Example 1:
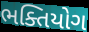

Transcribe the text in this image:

ભક્તિયોગ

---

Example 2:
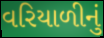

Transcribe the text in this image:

વરિયાળીનું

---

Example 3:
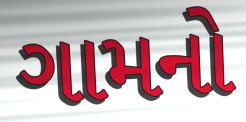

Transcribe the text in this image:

ગામનો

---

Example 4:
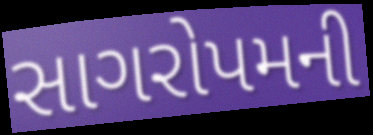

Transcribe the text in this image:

સાગરોપમની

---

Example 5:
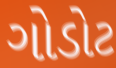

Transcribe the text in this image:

ગોડોટ